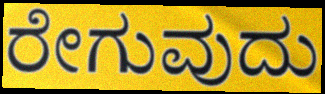
ರೇಗುವುದು